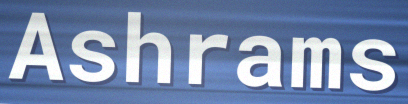
Ashrams